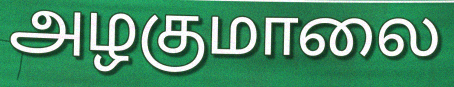
அழகுமாலை